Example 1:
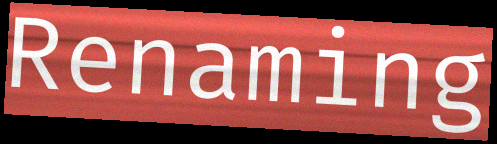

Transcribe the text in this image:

Renaming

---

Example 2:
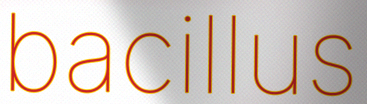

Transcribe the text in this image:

bacillus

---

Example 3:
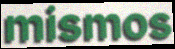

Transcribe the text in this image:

mismos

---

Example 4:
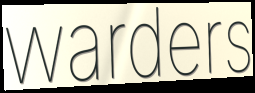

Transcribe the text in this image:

warders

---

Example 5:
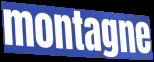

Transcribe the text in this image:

montagne